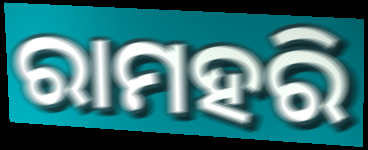
ରାମହରି